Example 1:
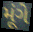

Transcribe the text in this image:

મૂંગે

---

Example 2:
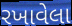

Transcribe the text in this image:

રખાવેલા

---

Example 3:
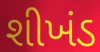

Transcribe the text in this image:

શીખંડ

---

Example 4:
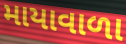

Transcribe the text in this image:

માયાવાળા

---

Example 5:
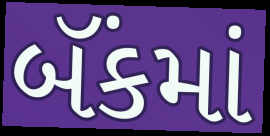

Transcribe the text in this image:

બૅંકમાં